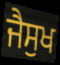
ਜੈਸੁਖ